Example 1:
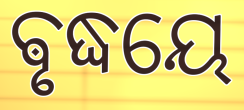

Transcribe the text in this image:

ଵୃଦ୍ଧୟେ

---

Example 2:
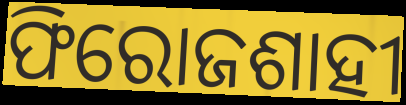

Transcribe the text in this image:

ଫିରୋଜଶାହୀ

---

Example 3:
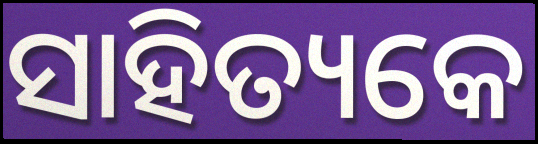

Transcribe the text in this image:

ସାହିତ୍ୟକେ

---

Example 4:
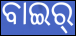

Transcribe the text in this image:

ବାଇର୍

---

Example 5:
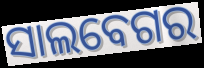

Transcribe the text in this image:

ସାଲବେଗର